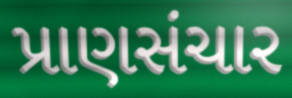
પ્રાણસંચાર